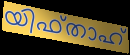
യിഫ്താഹ്